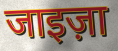
जाइज़ा